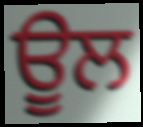
ਊਲ